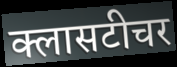
क्लासटीचर